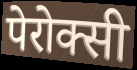
पेरोक्सी